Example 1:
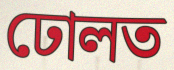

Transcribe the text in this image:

ঢোলত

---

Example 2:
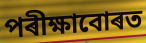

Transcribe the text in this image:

পৰীক্ষাবোৰত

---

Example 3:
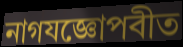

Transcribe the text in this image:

নাগযজ্ঞোপবীত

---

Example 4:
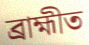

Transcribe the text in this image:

ব্ৰাহ্মীত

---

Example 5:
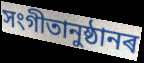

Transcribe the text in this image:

সংগীতানুষ্ঠানৰ